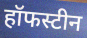
हॉफस्टीन